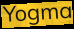
Yogma